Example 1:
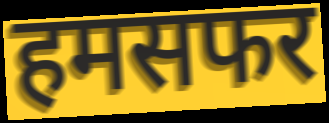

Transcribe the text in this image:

हमसफर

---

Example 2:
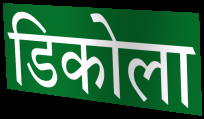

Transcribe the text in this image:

डिकोला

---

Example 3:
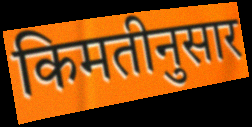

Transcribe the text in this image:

किमतीनुसार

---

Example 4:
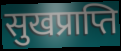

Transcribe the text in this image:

सुखप्राप्ति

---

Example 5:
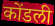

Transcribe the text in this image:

कोंडली